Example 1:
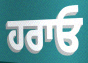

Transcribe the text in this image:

ਹਰਾਓ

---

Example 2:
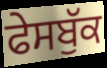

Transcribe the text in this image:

ਫੇਸਬੁੱਕ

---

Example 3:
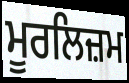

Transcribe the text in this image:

ਮੂਰਲਿਜ਼ਮ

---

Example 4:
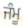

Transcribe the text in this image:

ਜੰਮੂ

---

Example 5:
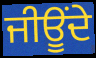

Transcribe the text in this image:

ਜੀਊਂਦੇ